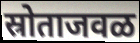
स्रोताजवळ